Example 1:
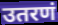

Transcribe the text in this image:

उतरणं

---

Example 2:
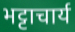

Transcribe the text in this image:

भट्टाचार्य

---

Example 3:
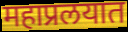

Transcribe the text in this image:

महाप्रलयात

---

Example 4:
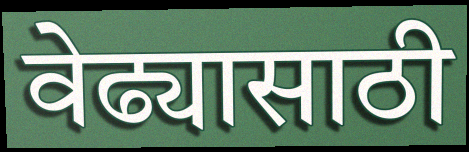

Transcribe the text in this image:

वेढ्यासाठी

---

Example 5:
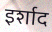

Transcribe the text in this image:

इर्शाद